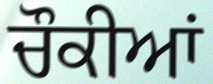
ਚੌਕੀਆਂ